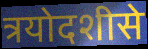
त्रयोदशीसे